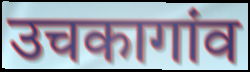
उचकागांव